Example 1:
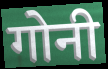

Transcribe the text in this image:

गोनी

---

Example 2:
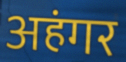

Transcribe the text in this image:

अहंगर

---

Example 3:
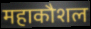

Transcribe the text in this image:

महाकौशल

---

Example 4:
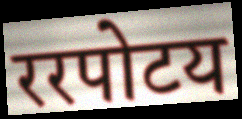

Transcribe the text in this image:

ररपोटय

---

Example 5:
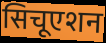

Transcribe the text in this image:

सिचूएशन